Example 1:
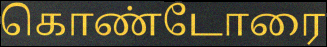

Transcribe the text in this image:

கொண்டோரை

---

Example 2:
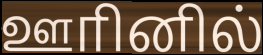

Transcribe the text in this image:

ஊரினில்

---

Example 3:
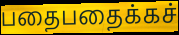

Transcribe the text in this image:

பதைபதைக்கச்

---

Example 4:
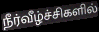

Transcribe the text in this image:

நீர்வீழ்ச்சிகளில்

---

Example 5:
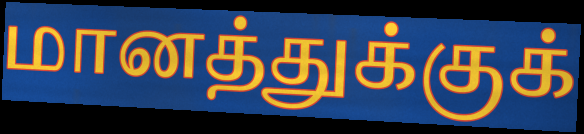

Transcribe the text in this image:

மானத்துக்குக்